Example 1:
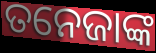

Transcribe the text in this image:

ତନେଜାଙ୍କ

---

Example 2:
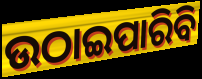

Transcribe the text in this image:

ଉଠାଇପାରିବି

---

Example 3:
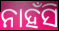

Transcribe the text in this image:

ନାହଁସି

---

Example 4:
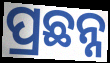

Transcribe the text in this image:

ପ୍ରଛନ୍ନ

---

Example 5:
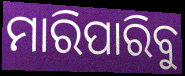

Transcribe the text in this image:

ମାରିପାରିବୁ